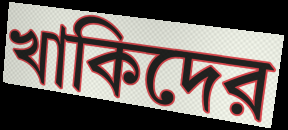
খাকিদের